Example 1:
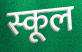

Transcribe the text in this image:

स्‍कूल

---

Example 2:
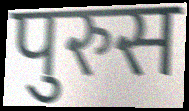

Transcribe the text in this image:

पुरुस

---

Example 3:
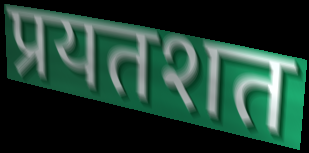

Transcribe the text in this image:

प्रयतशत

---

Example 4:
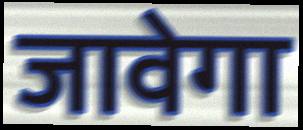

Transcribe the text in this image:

जावेगा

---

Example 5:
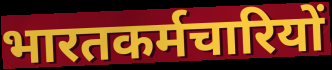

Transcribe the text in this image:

भारतकर्मचारियों